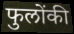
फुलोंकी